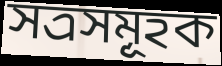
সত্ৰসমূহক